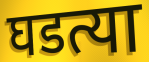
घडत्या